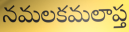
నమలకమలాప్త